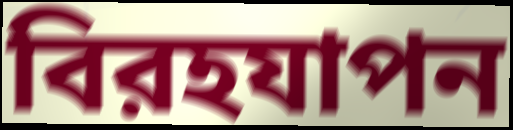
বিরহযাপন